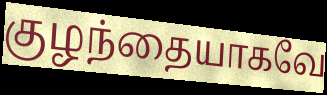
குழந்தையாகவே